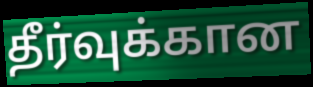
தீர்வுக்கான